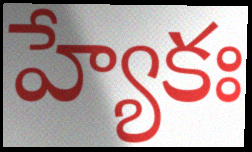
హ్యేకః